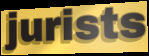
jurists